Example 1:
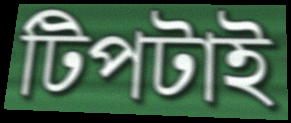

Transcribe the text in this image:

টিপটাই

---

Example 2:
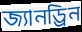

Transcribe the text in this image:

জ্যানড্রিন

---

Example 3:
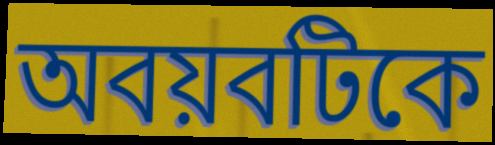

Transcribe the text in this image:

অবয়বটিকে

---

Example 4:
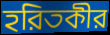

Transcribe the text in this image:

হরিতকীর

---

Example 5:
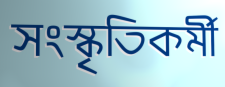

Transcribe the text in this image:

সংস্কৃতিকর্মী